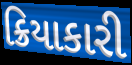
ક્રિયાકારી